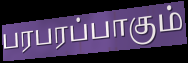
பரபரப்பாகும்